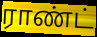
ராண்ட்